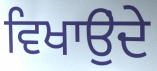
ਵਿਖਾਉੁਂਦੇ